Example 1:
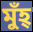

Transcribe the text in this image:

মুঁহ্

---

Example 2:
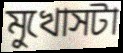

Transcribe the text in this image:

মুখোসটা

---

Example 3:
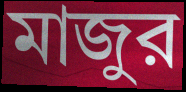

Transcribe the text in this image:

মাজুর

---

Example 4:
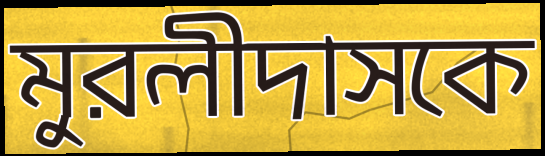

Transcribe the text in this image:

মুরলীদাসকে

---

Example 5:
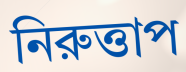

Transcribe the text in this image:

নিরুত্তাপ